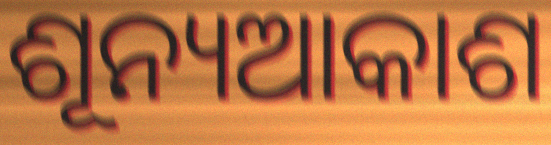
ଶୂନ୍ୟଆକାଶ